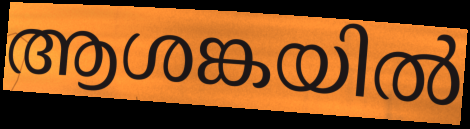
ആശങ്കയിൽ